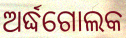
ଅର୍ଦ୍ଧଗୋଲକ